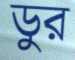
ডুর